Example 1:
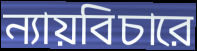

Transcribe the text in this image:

ন্যায়বিচারে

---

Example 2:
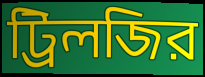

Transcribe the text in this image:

ট্রিলজির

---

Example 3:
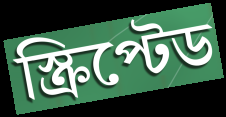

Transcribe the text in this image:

স্ক্রিপ্টেড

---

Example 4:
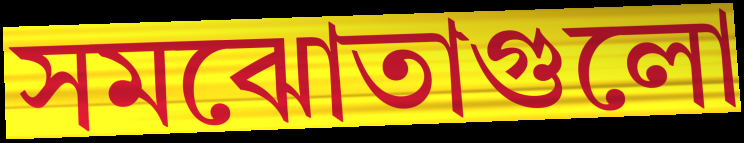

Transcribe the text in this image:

সমঝোতাগুলো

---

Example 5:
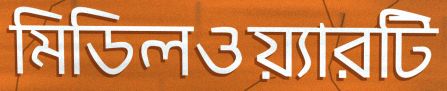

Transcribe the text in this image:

মিডিলওয়্যারটি